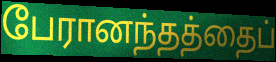
பேரானந்தத்தைப்